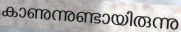
കാണുന്നുണ്ടായിരുന്നു